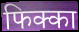
फिक्का